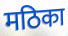
मठिका